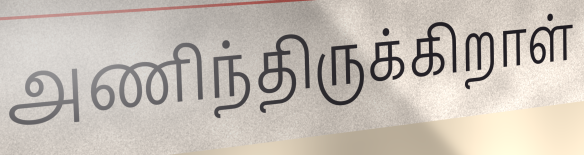
அணிந்திருக்கிறாள்